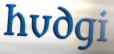
hudgi